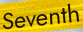
Seventh